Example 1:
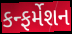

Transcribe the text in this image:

કન્ફર્મેશન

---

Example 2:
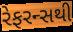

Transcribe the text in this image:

રેફરન્સથી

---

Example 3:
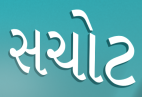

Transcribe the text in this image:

સચોટ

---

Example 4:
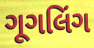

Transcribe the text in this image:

ગૂગલિંગ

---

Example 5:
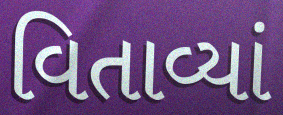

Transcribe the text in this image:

વિતાવ્યાં